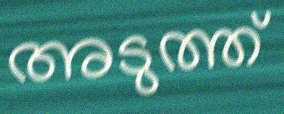
അടുത്ത്